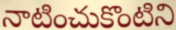
నాటించుకొంటిని